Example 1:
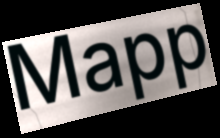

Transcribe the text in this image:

Mapp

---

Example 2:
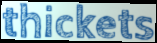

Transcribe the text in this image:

thickets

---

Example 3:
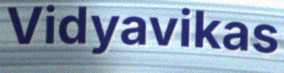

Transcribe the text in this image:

Vidyavikas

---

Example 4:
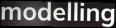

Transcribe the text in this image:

modelling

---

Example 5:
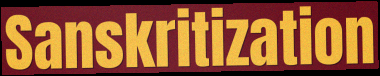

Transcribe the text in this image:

Sanskritization